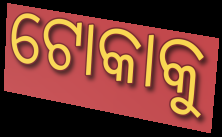
ଟୋକାକୁ